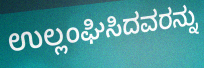
ಉಲ್ಲಂಘಿಸಿದವರನ್ನು